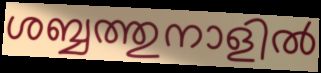
ശബ്ബത്തുനാളിൽ